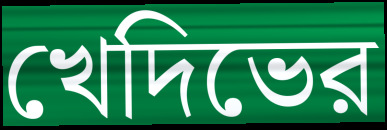
খেদিভের